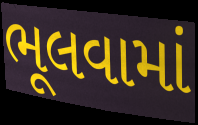
ભૂલવામાં